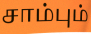
சாம்பும்